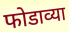
फोडाव्या